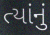
ત્યાંનું